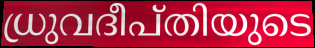
ധ്രുവദീപ്തിയുടെ